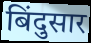
बिंदुसार